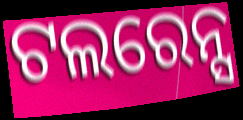
ଟଲରେନ୍ସ